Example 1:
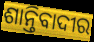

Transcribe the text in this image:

ଶାନ୍ତିବାଦୀର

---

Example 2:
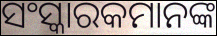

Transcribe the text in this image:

ସଂସ୍କାରକମାନଙ୍କ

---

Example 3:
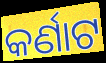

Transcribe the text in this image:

କର୍ଣାଟ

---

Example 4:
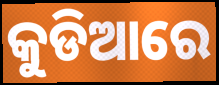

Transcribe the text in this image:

କୁଡିଆରେ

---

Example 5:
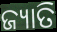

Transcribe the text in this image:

ଜ୍ୟାତି